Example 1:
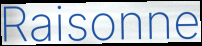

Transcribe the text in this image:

Raisonne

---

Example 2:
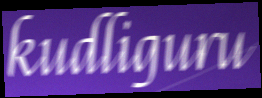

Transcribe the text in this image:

kudliguru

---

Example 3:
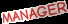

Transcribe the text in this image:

MANAGER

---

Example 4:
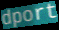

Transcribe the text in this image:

dport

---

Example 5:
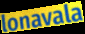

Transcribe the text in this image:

lonavala